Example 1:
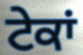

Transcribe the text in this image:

ਟੇਕਾਂ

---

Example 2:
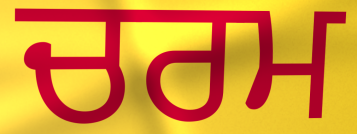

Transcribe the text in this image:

ਚਰਮ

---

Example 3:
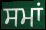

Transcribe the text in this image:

ਸਮਾਂ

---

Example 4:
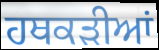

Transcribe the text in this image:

ਹਥਕੜੀਆਂ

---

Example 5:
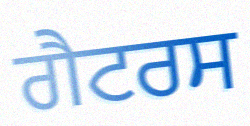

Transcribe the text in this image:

ਗੈਟਰਸ